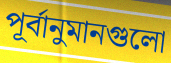
পূর্বানুমানগুলো